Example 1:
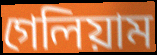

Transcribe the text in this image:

গেলিয়াম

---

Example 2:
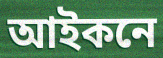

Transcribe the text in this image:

আইকনে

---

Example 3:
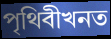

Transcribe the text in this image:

পৃথিবীখনত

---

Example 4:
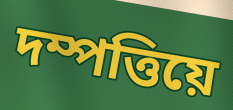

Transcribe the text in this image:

দম্পত্তিয়ে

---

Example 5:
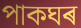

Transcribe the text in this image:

পাকঘৰ